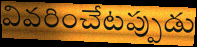
వివరించేటప్పుడు